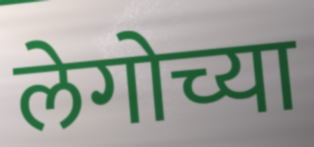
लेगोच्या